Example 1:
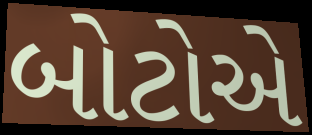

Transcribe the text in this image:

બોટોએ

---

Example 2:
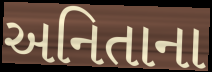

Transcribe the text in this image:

અનિતાના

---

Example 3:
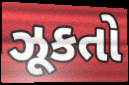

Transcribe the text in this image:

ઝૂકતો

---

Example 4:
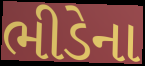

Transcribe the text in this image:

ભીડેના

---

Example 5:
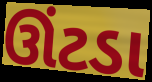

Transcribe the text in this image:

ઊંટડા